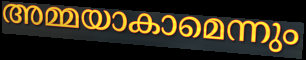
അമ്മയാകാമെന്നും